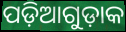
ପଡ଼ିଆଗୁଡ଼ାକ